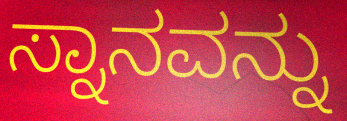
ಸ್ನಾನವನ್ನು